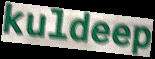
kuldeep